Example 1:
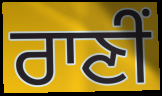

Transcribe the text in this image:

ਰਾਣੀਂ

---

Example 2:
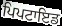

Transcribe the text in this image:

ਪਿਪਟਾਇਡ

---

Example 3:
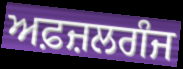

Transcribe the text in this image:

ਅਫ਼ਜ਼ਲਗੰਜ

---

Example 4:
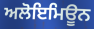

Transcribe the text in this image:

ਅਲੋਇਮਿਊਨ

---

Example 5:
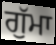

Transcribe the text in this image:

ਗੁੱਮਾ